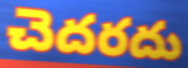
చెదరదు